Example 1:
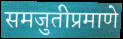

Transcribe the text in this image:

समजुतीप्रमाणे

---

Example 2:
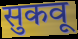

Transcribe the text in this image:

सुकवू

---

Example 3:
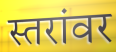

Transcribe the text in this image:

स्तरांवर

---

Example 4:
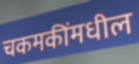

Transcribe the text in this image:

चकमकींमधील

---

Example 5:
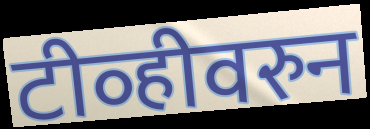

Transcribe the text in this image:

टीव्हीवरुन